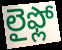
లైఫ్లో